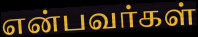
என்பவர்கள்